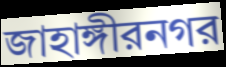
জাহাঙ্গীরনগর